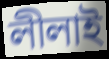
লীলাই